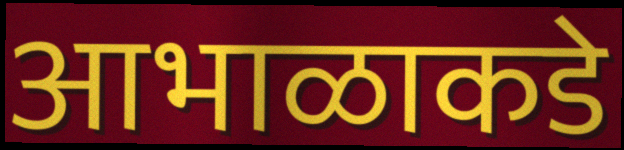
आभाळाकडे